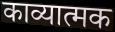
काव्यात्मक